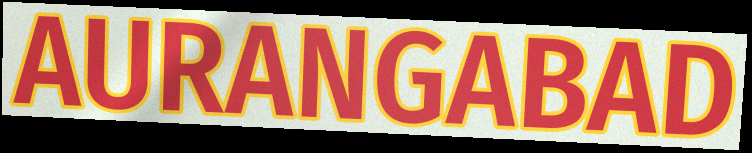
AURANGABAD